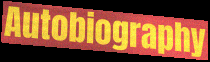
Autobiography